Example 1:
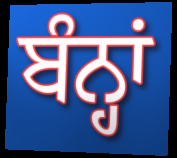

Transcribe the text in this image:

ਬੰਨ੍ਹਾਂ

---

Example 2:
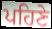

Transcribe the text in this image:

ਪਹਿਣੇ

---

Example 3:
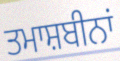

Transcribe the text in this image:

ਤਮਾਸ਼ਬੀਨਾਂ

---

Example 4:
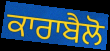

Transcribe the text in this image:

ਕਾਰਾਬੈਲੋ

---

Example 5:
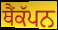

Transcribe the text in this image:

ਥੈਂਕੱਪਨ